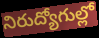
నిరుద్యోగుల్లో